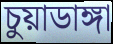
চুয়াডাঙ্গা